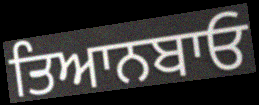
ਤਿਆਨਬਾਓ